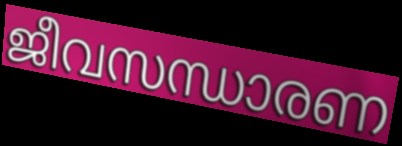
ജീവസന്ധാരണ